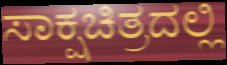
ಸಾಕ್ಷಚಿತ್ರದಲ್ಲಿ